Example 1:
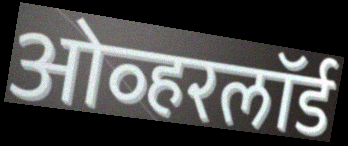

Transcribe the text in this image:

ओव्हरलॉर्ड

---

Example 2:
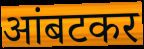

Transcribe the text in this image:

आंबटकर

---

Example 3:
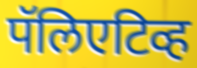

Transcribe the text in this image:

पॅलिएटिव्ह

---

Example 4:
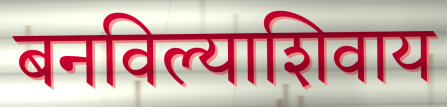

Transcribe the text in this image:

बनविल्याशिवाय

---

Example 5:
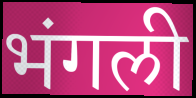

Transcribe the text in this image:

भंगली